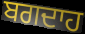
ਬਗਦਾਹ